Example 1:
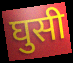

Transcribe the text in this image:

घुसी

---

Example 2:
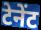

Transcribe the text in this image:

टेनेंट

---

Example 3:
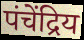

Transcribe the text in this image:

पंचेंद्रिय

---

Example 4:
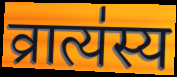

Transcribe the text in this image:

व्रात्य॑स्य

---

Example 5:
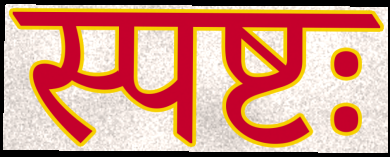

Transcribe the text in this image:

स्पष्टः